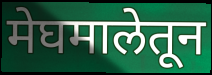
मेघमालेतून